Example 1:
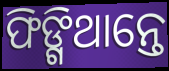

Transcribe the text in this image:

ଫିଙ୍ଗିଥାନ୍ତେ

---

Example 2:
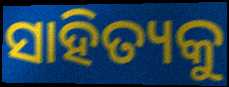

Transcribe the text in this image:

ସାହିତ୍ୟକୁ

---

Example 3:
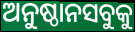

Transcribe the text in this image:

ଅନୁଷ୍ଠାନସବୁକୁ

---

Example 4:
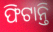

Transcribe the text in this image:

ଫିଟାନ୍ତି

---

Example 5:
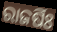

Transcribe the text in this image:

ରାଜର୍ଷିଃ